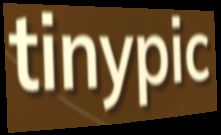
tinypic